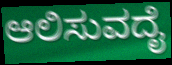
ಆಲಿಸುವದೈ